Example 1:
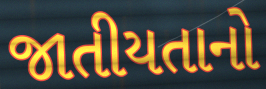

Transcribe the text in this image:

જાતીયતાનો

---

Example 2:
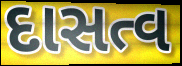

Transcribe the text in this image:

દાસત્વ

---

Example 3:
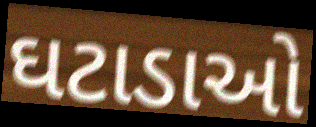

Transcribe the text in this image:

ઘટાડાઓ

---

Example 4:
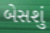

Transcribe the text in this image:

બેસશું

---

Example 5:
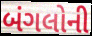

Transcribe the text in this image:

બંગલોની